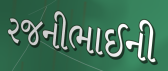
રજનીભાઈની